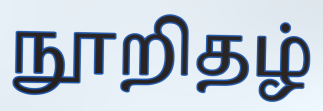
நூறிதழ்